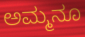
ಅಮ್ಮನೂ